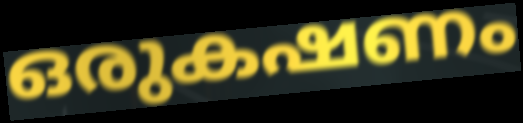
ഒരുകഷണം